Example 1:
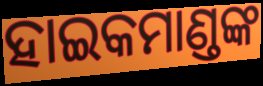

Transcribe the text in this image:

ହାଇକମାଣ୍ଡଙ୍କ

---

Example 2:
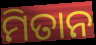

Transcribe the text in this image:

ମିତାନ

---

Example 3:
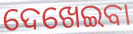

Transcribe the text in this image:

ଦେଖେଇବା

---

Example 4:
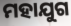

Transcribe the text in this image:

ମହାଯୁଗ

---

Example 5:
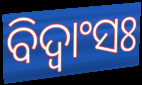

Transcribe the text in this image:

ବିଦ୍ଵାଂସଃ